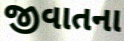
જીવાતના